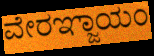
ವೇರಞ್ಜಾಯಂ